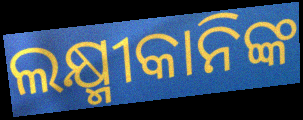
ଲକ୍ଷ୍ମୀକାନିଙ୍କ